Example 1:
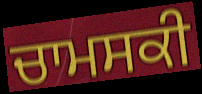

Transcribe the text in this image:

ਚਾਮਸਕੀ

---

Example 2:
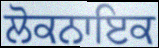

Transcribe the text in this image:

ਲੋਕਨਾਇਕ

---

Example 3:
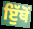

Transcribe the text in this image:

ਇੁੱਥੋਂ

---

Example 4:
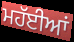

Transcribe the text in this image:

ਮਹੱਈਆਂ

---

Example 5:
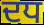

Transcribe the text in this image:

ਦਧ